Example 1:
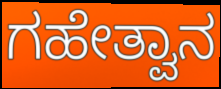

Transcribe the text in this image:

ಗಹೇತ್ವಾನ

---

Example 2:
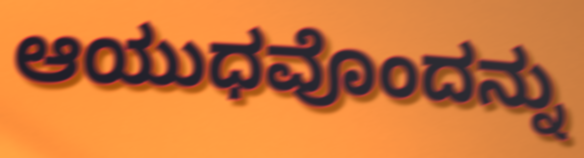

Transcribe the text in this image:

ಆಯುಧವೊಂದನ್ನು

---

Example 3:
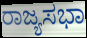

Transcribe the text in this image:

ರಾಜ್ಯಸಭಾ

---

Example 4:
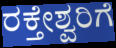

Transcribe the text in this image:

ರಕ್ತೇಶ್ವರಿಗೆ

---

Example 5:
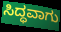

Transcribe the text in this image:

ಸಿದ್ಧವಾಗು